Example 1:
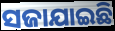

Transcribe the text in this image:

ସଜାଯାଇଛି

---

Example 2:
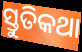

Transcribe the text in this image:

ସ୍ତୁତିକଥା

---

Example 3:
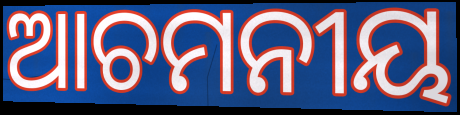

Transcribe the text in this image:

ଆଚମନୀୟ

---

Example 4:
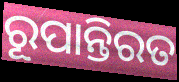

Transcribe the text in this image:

ରୂପାନ୍ତିରତ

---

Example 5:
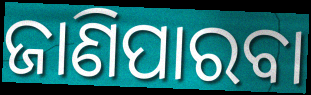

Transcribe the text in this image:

ଜାଣିପାରବା